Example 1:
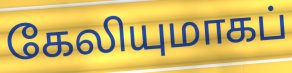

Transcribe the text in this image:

கேலியுமாகப்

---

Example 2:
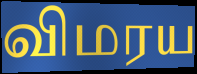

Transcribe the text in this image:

விமரய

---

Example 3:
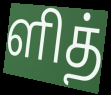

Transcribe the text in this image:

ளித்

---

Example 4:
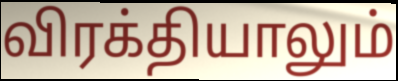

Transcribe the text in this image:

விரக்தியாலும்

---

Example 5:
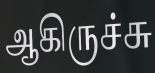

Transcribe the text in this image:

ஆகிருச்சு